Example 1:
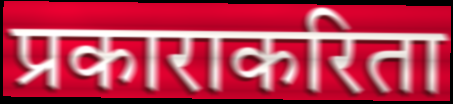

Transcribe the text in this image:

प्रकाराकरिता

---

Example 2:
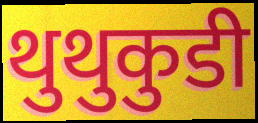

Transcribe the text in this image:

थुथुकुडी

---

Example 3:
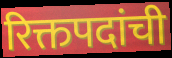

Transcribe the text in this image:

रिक्तपदांची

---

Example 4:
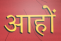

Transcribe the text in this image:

आहों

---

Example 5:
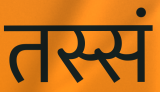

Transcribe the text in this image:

तस्सं